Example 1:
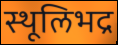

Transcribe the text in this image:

स्थूलिभद्र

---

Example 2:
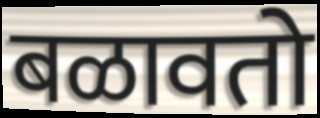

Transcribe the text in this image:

बळावतो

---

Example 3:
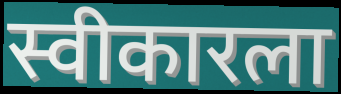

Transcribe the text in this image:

स्वीकारला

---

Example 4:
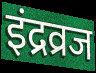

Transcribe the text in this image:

इंद्रव्रज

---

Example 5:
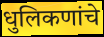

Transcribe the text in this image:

धुलिकणांचे